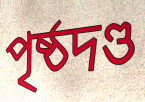
পৃষ্ঠদণ্ড